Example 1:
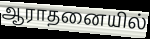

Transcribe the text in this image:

ஆராதனையில்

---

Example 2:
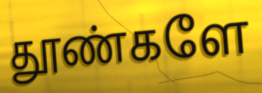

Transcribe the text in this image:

தூண்களே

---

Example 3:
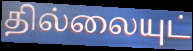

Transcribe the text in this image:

தில்லையுட்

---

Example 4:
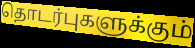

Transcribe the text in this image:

தொடர்புகளுக்கும்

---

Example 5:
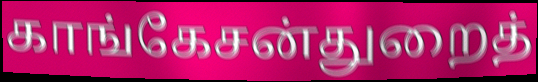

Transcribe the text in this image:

காங்கேசன்துறைத்